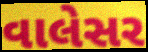
વાલેસર